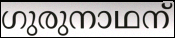
ഗുരുനാഥന്